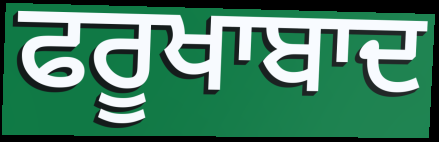
ਫਰੂਖਾਬਾਦ